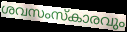
ശവസംസ്കാരവും